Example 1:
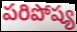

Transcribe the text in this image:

పరిపోష్య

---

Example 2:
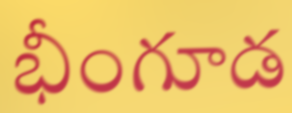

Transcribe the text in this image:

భీంగూడ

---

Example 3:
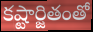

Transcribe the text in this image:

కష్టార్జితంతో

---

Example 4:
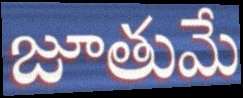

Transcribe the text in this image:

జూతుమే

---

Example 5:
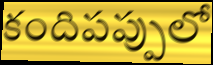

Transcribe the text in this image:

కందిపప్పులో